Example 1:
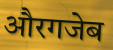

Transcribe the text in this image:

औरगजेब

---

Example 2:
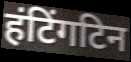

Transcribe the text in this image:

हंटिंगटिन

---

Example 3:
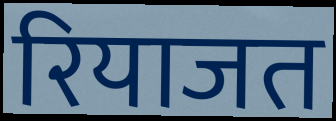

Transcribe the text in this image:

रियाजत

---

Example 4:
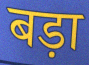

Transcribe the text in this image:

बड़ा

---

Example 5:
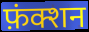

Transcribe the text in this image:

फ़ंक्शन